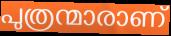
പുത്രന്മാരാണ്